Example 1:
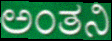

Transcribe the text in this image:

ಅಂತನಿ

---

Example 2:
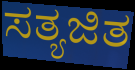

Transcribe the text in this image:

ಸತ್ಯಜಿತ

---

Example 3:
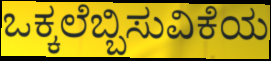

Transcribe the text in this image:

ಒಕ್ಕಲೆಬ್ಬಿಸುವಿಕೆಯ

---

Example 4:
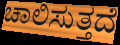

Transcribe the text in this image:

ಚಾಲಿಸುತ್ತದೆ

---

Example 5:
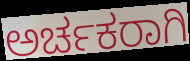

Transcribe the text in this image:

ಅರ್ಚಕರಾಗಿ